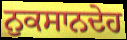
ਨੁਕਸਾਨਦੇਹ